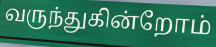
வருந்துகின்றோம்